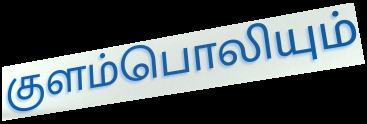
குளம்பொலியும்